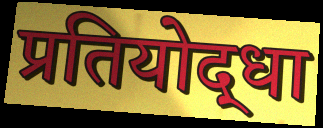
प्रतियोद्धा